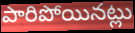
పారిపోయినట్లు